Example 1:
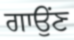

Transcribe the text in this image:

ਗਾਉਂਣ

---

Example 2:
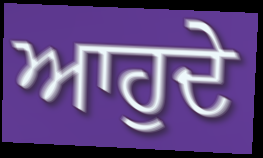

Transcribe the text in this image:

ਆਹੁਦੇ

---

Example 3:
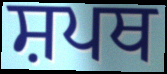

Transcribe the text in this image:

ਸ਼ਪਥ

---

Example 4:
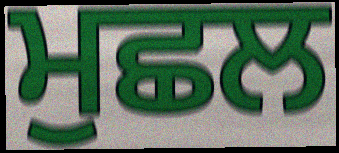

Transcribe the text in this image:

ਮੁਛਲ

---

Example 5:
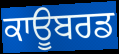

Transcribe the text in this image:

ਕਾਊਬਰਡ